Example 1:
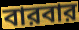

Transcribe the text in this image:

বারবার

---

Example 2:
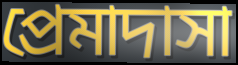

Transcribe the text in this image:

প্রেমাদাসা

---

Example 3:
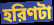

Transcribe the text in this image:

হরিণটা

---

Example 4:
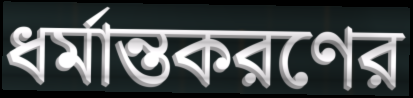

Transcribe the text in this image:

ধর্মান্তকরণের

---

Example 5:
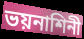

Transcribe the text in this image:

ভয়নাশিনী